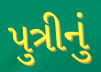
પુત્રીનું